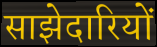
साझेदारियों